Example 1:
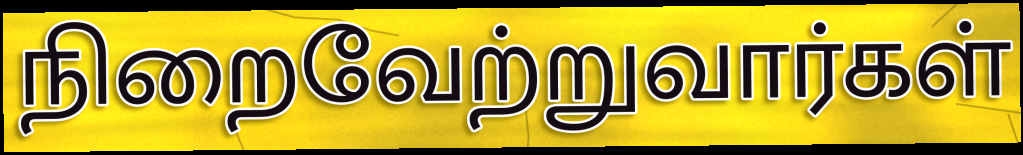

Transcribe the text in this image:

நிறைவேற்றுவார்கள்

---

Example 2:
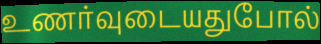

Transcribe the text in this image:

உணர்வுடையதுபோல்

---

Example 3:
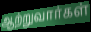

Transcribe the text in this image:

ஆற்றுவார்கள்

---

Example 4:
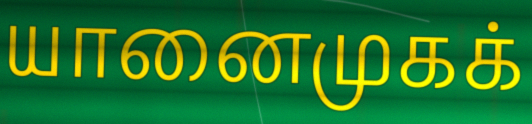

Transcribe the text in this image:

யானைமுகக்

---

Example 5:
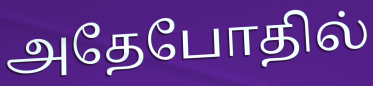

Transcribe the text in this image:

அதேபோதில்